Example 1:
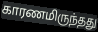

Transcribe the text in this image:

காரணமிருந்தது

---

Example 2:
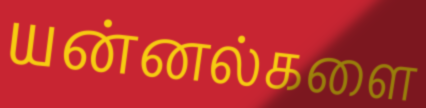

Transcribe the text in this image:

யன்னல்களை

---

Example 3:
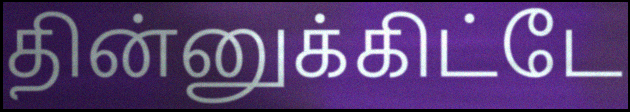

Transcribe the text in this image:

தின்னுக்கிட்டே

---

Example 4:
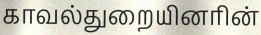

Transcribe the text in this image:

காவல்துறையினரின்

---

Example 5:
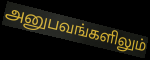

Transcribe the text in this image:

அனுபவங்களிலும்